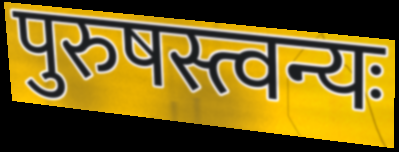
पुरुषस्त्वन्यः